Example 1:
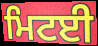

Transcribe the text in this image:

ਮਿਟਈ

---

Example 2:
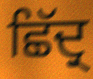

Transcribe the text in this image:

ਛਿੱਦ੍ਰ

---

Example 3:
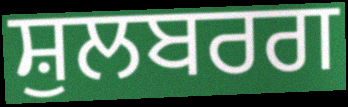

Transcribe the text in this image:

ਸ਼ੁਲਬਰਗ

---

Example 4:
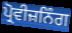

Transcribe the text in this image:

ਪ੍ਰੋਵੀਜ਼ਨਿੰਗ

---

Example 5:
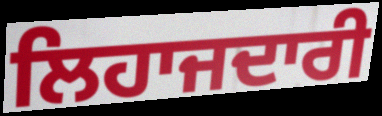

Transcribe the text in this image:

ਲਿਹਾਜਦਾਰੀ